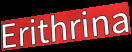
Erithrina